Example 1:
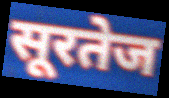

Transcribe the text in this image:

सूरतेज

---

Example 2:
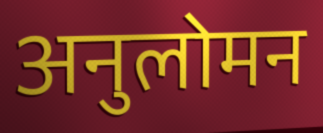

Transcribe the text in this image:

अनुलोमन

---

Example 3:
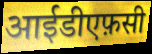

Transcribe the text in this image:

आईडीएफ़सी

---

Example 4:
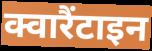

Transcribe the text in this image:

क्वारैंटाइन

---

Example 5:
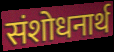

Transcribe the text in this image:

संशोधनार्थ